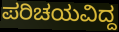
ಪರಿಚಯವಿದ್ದ